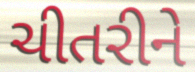
ચીતરીને